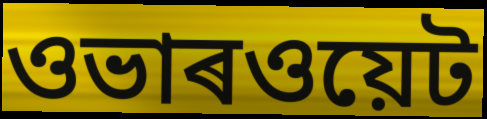
ওভাৰওয়েট